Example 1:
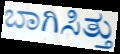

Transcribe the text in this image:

ಬಾಗಿಸಿತ್ತು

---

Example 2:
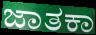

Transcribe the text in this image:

ಜಾತಕಾ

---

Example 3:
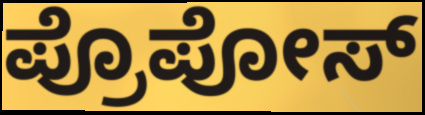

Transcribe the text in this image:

ಪ್ರೊಪೋಸ್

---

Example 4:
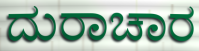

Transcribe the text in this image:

ದುರಾಚಾರ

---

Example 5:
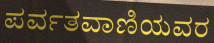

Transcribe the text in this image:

ಪರ್ವತವಾಣಿಯವರ